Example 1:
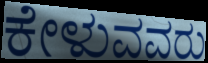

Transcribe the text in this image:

ಕೇಳುವವರು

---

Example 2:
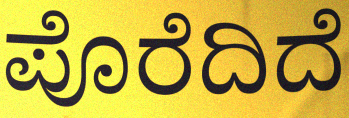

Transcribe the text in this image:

ಪೊರೆದಿದೆ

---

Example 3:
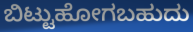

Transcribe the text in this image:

ಬಿಟ್ಟುಹೋಗಬಹುದು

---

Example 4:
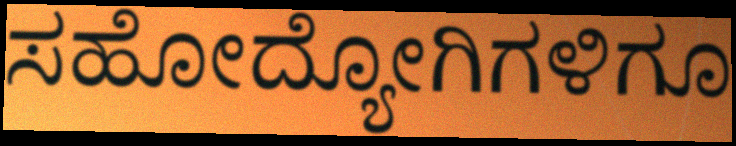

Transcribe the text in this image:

ಸಹೋದ್ಯೋಗಿಗಳಿಗೂ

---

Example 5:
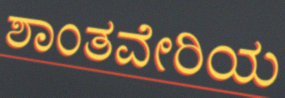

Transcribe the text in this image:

ಶಾಂತವೇರಿಯ